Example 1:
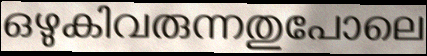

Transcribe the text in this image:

ഒഴുകിവരുന്നതുപോലെ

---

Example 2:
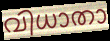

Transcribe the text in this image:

വിധാതാ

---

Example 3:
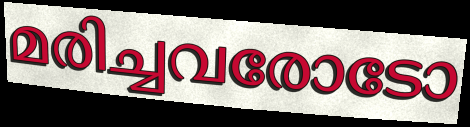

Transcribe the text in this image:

മരിച്ചവരോടോ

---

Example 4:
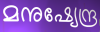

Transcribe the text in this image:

മനുഷ്യേന്ദ്ര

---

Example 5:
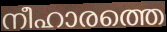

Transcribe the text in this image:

നീഹാരത്തെ